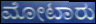
ಮೋಟಾರು